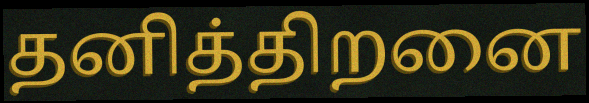
தனித்திறனை